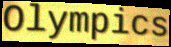
Olympics